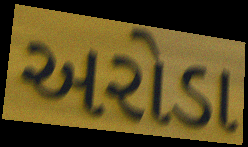
અરોડા